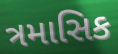
ત્રમાસિક